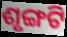
ଶୃଙ୍ଗଟି